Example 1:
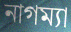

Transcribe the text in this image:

নাগম্যা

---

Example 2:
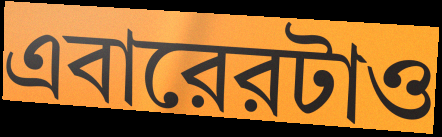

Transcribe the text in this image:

এবারেরটাও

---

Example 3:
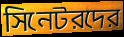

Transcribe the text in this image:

সিনেটরদের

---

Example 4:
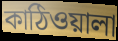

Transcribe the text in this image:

কাঠিওয়ালা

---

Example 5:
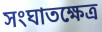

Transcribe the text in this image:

সংঘাতক্ষেত্র